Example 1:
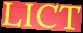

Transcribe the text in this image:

LICT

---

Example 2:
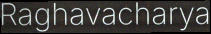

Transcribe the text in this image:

Raghavacharya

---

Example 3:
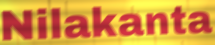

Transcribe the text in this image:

Nilakanta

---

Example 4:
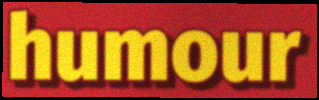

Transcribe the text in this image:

humour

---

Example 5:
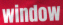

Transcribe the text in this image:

window